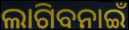
ଲାଗିବନାଇଁ